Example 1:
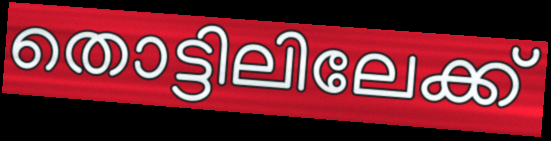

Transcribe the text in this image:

തൊട്ടിലിലേക്ക്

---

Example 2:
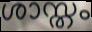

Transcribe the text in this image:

ശാസ്തം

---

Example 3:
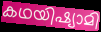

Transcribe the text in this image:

കഥയിഷ്യാമി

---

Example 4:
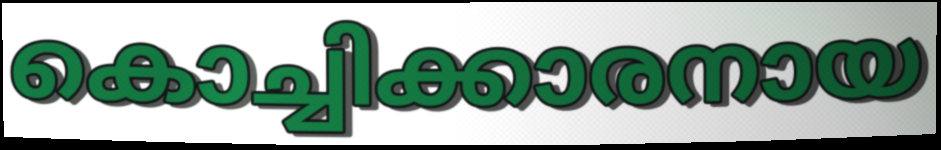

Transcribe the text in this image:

കൊച്ചിക്കാരനായ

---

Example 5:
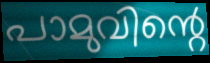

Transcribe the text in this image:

പാമുവിന്റെ